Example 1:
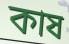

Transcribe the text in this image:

কাষ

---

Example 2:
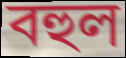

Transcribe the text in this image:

বহুল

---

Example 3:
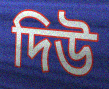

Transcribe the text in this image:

দিউ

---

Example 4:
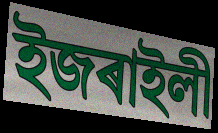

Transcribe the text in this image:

ইজৰাইলী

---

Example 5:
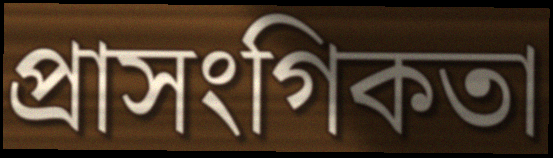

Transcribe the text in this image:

প্ৰাসংগিকতা